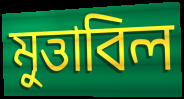
মুত্তাবিল